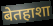
बेतहाशा